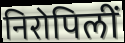
निरोपिलीं